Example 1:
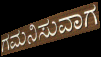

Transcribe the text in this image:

ಗಮನಿಸುವಾಗ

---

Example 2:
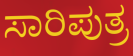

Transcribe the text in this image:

ಸಾರಿಪುತ್ರ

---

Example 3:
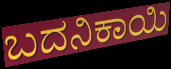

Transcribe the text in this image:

ಬದನಿಕಾಯಿ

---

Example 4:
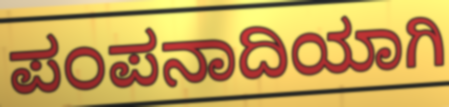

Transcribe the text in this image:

ಪಂಪನಾದಿಯಾಗಿ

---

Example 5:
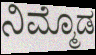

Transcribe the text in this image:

ನಿಮ್ಮೊಡ